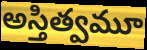
అస్తిత్వమూ